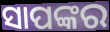
ସାପଙ୍କର